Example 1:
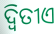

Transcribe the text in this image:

ଦ୍ୱିତୀଏ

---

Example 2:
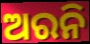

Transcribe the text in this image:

ଅରନି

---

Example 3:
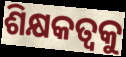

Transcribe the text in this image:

ଶିକ୍ଷକତ୍ଵକୁ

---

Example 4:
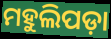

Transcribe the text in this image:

ମହୁଲିପଡ଼ା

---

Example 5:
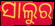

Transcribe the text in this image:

ସାଲୁର